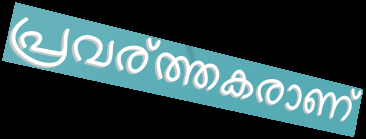
പ്രവര്ത്തകരാണ്